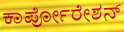
ಕಾರ್ಪೋರೇಶನ್